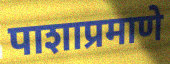
पाशाप्रमाणे